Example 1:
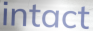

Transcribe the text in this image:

intact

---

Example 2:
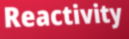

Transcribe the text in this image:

Reactivity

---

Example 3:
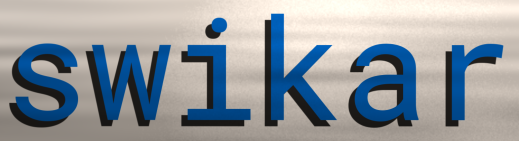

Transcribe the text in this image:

swikar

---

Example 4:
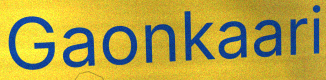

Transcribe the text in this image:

Gaonkaari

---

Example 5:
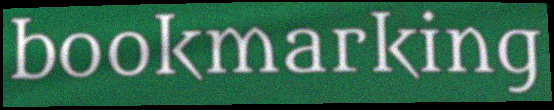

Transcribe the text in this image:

bookmarking